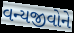
વન્યજીવોને